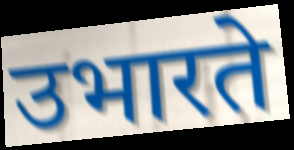
उभारते